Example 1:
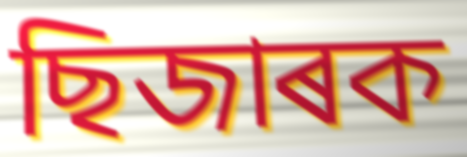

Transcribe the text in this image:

ছিজাৰক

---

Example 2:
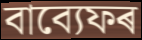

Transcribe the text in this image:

বাব্যেফৰ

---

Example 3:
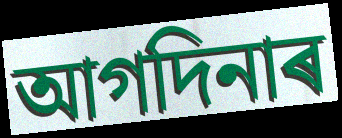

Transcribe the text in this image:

আগদিনাৰ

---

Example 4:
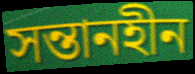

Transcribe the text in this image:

সন্তানহীন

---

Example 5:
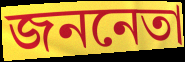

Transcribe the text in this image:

জননেতা